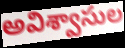
అవిశ్వాసుల